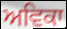
ਅਵਿਕਾ